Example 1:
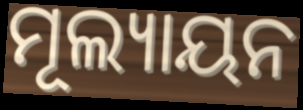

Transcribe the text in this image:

ମୂଲ୍ୟାୟନ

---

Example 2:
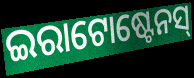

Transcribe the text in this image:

ଇରାଟୋଷ୍ଟେନସ୍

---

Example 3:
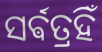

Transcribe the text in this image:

ସର୍ଵତ୍ରହିଁ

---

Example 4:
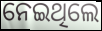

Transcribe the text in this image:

ନେଇଥିଲେ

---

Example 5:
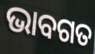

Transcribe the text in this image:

ଭାବଗତ